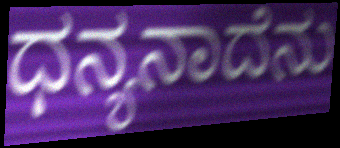
ಧನ್ಯನಾದೆನು